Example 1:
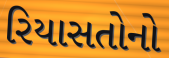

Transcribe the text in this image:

રિયાસતોનો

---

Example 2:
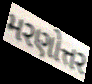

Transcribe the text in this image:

મરણોત્તર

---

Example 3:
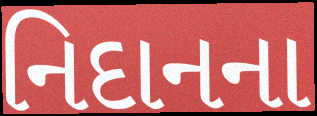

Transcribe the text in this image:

નિદાનના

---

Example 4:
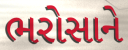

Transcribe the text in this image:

ભરોસાને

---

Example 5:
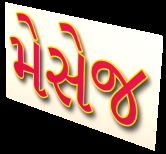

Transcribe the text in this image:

મેસેજ